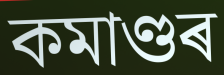
কমাণ্ডৰ